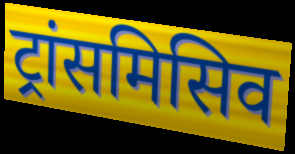
ट्रांसमिसिव